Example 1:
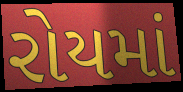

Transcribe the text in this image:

રોયમાં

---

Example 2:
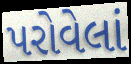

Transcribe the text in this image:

પરોવેલાં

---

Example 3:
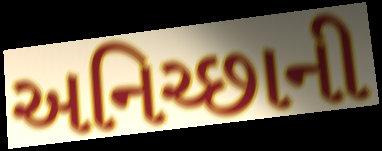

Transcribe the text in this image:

અનિચ્છાની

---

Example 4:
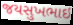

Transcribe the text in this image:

જયસુખભાઇ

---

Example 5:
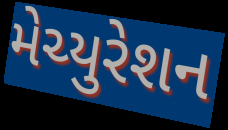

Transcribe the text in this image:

મેચ્યુરેશન